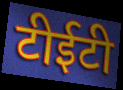
टीईटी